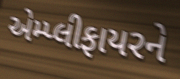
એમ્પ્લીફાયરને